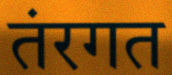
तंरगत